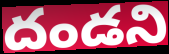
దండని